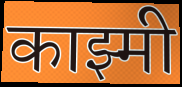
काझ्मी